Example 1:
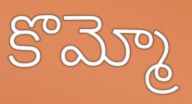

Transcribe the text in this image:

కొమ్మో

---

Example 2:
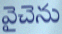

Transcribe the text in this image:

వైచెను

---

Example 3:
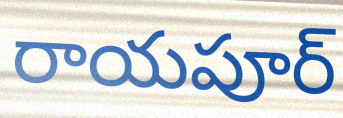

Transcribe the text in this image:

రాయపూర్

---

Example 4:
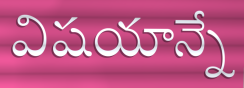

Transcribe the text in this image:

విషయాన్నే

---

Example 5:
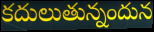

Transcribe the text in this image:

కదులుతున్నందున